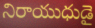
నిరాయుధుడై